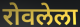
रोवलेला